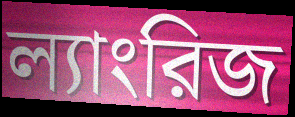
ল্যাংরিজ